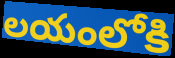
లయంలోకి